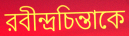
রবীন্দ্রচিন্তাকে